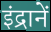
इंद्रानें